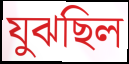
যুঝছিল